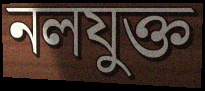
নলযুক্ত